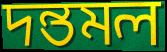
দন্তমল